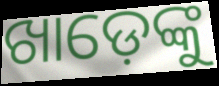
ଖାଡ଼େଙ୍କୁ